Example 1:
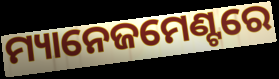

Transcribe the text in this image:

ମ୍ୟାନେଜମେଣ୍ଟରେ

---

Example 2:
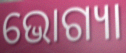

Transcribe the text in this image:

ଭୋଗ୍ୟା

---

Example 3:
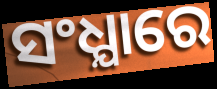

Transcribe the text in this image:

ସଂଧ୍ଯାରେ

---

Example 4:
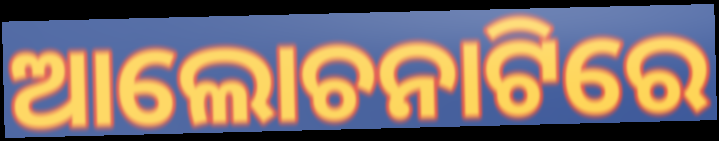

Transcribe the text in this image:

ଆଲୋଚନାଟିରେ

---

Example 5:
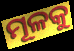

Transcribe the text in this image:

ମୂଳକୁ